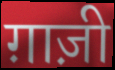
ग़ाज़ी